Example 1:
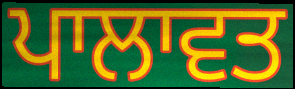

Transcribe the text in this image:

ਪਾਲਾਵਤ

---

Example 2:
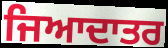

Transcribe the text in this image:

ਜਿਆਦਾਤਰ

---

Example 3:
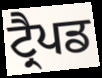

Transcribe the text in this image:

ਟ੍ਰੈਪਡ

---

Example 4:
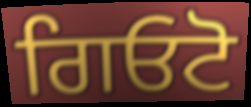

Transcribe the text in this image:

ਗਿਓਟੋ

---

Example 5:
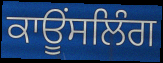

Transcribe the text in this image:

ਕਾਊਂਸਲਿੰਗ